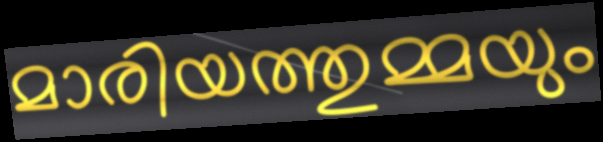
മാരിയത്തുമ്മയും